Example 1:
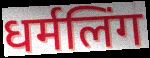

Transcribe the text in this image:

धर्मलिंग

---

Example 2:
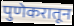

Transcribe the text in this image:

पुणेकरातून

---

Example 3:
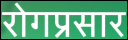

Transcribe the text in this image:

रोगप्रसार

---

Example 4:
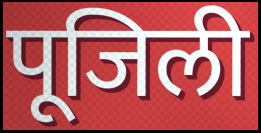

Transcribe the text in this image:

पूजिली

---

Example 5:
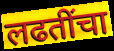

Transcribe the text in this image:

लढतींचा